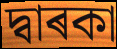
দ্বাৰকা